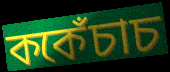
ককেঁচাচ